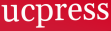
ucpress